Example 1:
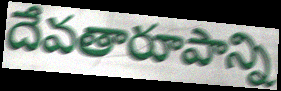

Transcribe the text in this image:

దేవతారూపాన్ని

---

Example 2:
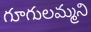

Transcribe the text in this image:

గూగులమ్మని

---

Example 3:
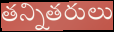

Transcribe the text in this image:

తన్నితరులు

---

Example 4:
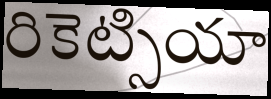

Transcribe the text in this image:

రికెట్సియా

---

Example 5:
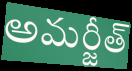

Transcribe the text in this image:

అమర్జీత్